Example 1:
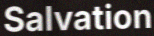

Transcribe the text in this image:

Salvation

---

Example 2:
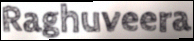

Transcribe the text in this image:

Raghuveera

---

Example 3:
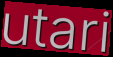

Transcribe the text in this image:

utari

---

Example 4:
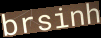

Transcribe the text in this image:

brsinh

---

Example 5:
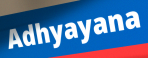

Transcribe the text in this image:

Adhyayana